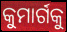
କୁମାର୍ଗକୁ